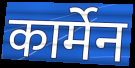
कार्मेन